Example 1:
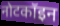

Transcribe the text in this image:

नोटकॉइन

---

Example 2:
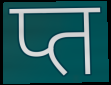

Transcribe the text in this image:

प्त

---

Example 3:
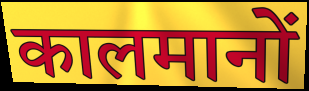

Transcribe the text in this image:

कालमानों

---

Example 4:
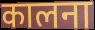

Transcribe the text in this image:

कालना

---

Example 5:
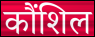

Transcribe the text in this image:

कौंशिल